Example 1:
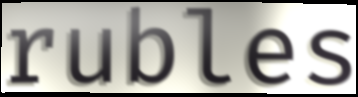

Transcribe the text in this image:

rubles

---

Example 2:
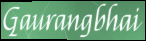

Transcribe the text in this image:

Gaurangbhai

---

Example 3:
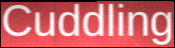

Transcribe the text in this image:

Cuddling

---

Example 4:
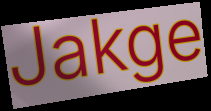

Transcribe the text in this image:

Jakge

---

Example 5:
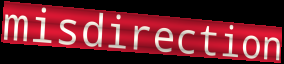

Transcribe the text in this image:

misdirection